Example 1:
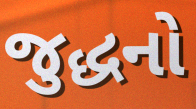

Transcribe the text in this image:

જુદ્ધનો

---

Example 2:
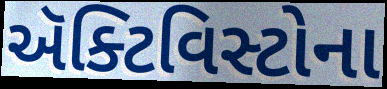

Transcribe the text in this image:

ઍક્ટિવિસ્ટોના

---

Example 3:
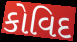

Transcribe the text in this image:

કોવિદ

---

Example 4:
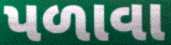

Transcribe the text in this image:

પળાવા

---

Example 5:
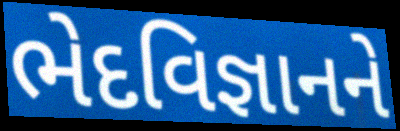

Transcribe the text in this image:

ભેદવિજ્ઞાનને